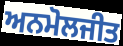
ਅਨਮੋਲਜੀਤ